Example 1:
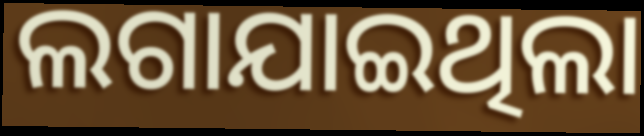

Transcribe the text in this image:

ଲଗାଯାଇଥିଲା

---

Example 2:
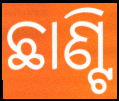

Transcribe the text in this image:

ଛାଣ୍ଟି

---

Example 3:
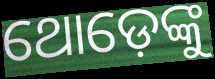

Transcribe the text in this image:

ଥୋଡ଼େଙ୍କୁ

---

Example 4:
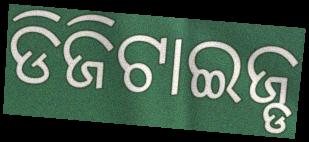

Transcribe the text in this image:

ଡିଜିଟାଇଜ୍ଡ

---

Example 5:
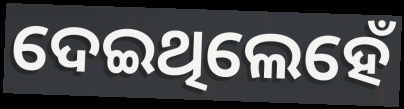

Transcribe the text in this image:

ଦେଇଥିଲେହେଁ